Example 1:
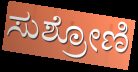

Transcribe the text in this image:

ಸುಶ್ರೋಣಿ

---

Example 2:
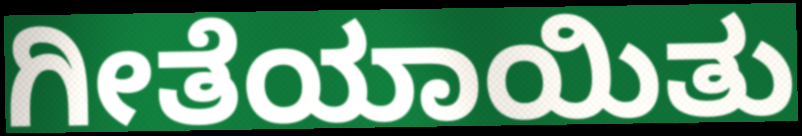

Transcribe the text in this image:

ಗೀತೆಯಾಯಿತು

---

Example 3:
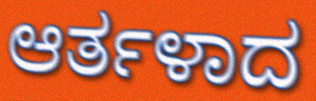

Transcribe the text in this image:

ಆರ್ತಳಾದ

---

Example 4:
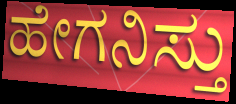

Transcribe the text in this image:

ಹೇಗನಿಸ್ತು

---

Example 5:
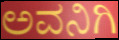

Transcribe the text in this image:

ಅವನಿಗಿ